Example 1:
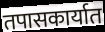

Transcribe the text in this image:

तपासकार्यात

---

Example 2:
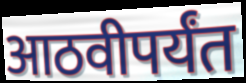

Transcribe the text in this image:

आठवीपर्यंत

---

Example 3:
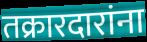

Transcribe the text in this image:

तक्रारदारांना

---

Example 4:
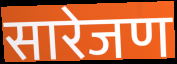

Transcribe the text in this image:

सारेजण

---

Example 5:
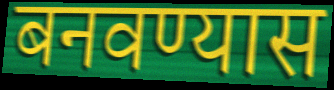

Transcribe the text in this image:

बनवण्यास